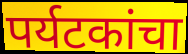
पर्यटकांचा